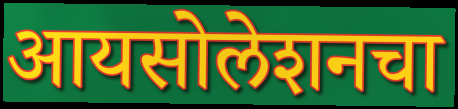
आयसोलेशनचा